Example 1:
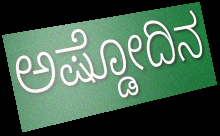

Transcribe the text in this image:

ಅಷ್ಡೋದಿನ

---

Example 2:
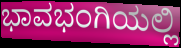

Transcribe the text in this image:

ಭಾವಭಂಗಿಯಲ್ಲಿ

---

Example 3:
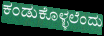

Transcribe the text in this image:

ಕಂಡುಕೊಳ್ಳಲೆಂದು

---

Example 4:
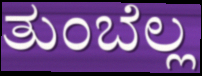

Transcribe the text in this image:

ತುಂಬೆಲ್ಲ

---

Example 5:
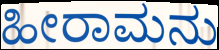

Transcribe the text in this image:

ಹೀರಾಮನು